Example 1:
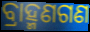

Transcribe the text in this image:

ବ୍ରାହ୍ମଣଗଣ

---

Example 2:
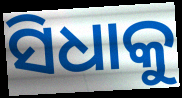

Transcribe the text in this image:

ସିଧାକୁ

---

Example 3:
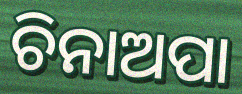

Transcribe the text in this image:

ଚିନାଅପା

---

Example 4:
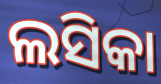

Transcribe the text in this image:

ଲସିକା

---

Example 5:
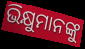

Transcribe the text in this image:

ଭିକ୍ଷୁମାନଙ୍କୁ